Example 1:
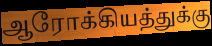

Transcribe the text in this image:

ஆரோக்கியத்துக்கு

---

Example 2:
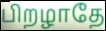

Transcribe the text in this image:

பிறழாதே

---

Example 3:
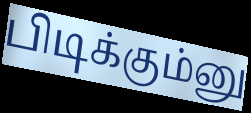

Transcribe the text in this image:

பிடிக்கும்னு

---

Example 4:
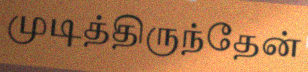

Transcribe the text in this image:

முடித்திருந்தேன்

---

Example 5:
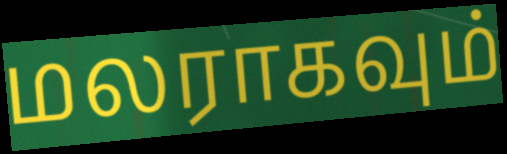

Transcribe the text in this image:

மலராகவும்